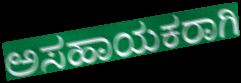
ಅಸಹಾಯಕರಾಗಿ